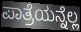
ಪಾತ್ರೆಯನ್ನೆಲ್ಲ